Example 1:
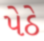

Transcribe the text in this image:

પેઠે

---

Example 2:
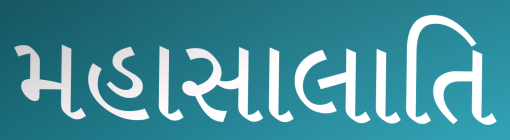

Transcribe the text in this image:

મહાસાલાતિ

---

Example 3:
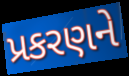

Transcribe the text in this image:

પ્રકરણને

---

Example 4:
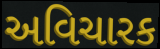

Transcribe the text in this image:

અવિચારક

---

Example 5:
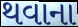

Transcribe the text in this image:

થવાના